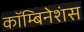
कॉम्बिनेशंस